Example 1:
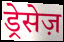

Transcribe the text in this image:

ड्रेसेज़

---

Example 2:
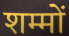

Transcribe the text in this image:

शम्मों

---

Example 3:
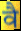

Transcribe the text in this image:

वै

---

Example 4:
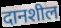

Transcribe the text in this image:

दानशील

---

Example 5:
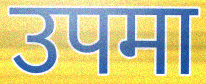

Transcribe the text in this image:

उपमा